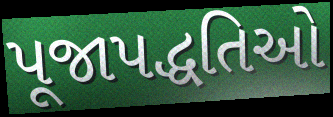
પૂજાપદ્ધતિઓ